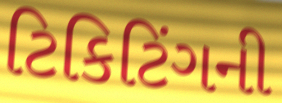
ટિકિટિંગની